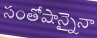
సంతోషాన్నైనా